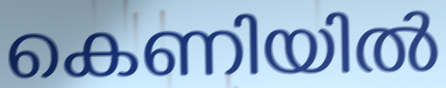
കെണിയിൽ